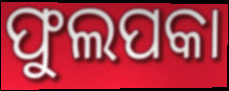
ଫୁଲପକା